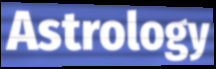
Astrology